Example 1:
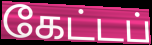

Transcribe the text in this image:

கேட்டப்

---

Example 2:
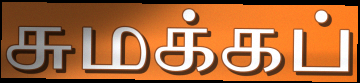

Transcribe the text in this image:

சுமக்கப்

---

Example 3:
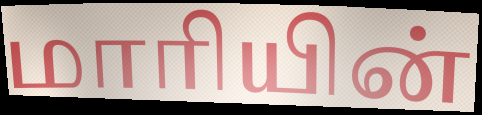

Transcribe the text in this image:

மாரியின்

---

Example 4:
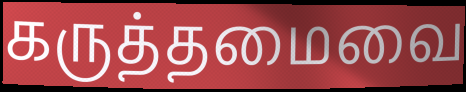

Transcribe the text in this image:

கருத்தமைவை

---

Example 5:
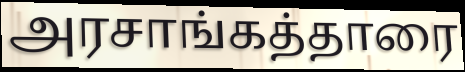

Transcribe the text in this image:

அரசாங்கத்தாரை